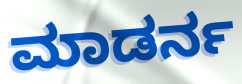
ಮಾಡರ್ನ